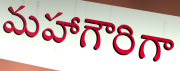
మహాగౌరిగా